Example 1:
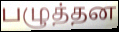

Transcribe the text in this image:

பழுத்தன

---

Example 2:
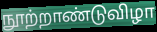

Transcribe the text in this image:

நூற்றாண்டுவிழா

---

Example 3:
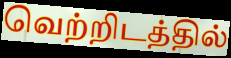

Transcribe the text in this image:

வெற்றிடத்தில்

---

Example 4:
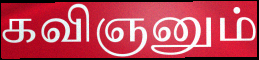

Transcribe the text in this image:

கவிஞனும்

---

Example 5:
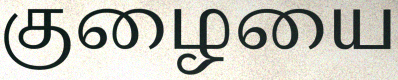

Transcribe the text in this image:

குழையை